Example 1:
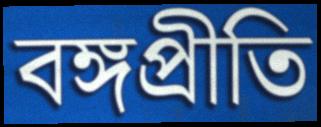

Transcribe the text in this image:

বঙ্গপ্রীতি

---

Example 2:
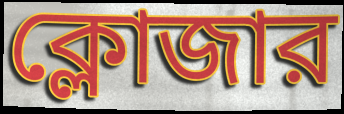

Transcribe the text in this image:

ক্লোজার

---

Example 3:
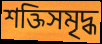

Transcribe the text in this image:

শক্তিসমৃদ্ধ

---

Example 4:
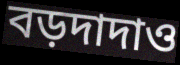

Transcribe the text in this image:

বড়দাদাও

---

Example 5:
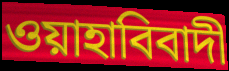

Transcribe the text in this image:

ওয়াহাবিবাদী